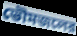
ভৌমজলের